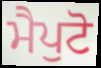
ਮੈਪੁਟੋ